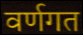
वर्णगत